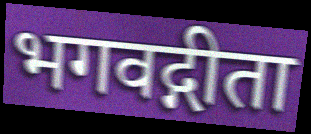
भगवद्गीता